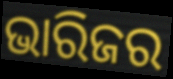
ଭାରିଜର